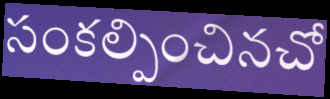
సంకల్పించినచో